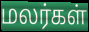
மலர்கள்